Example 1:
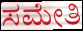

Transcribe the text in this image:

ಸಮೇತಿ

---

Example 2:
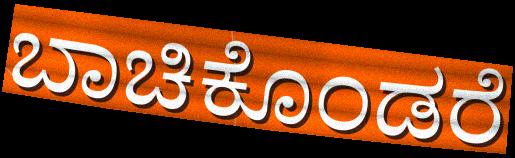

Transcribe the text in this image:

ಬಾಚಿಕೊಂಡರೆ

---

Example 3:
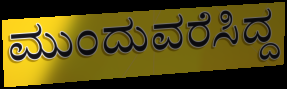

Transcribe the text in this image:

ಮುಂದುವರೆಸಿದ್ದ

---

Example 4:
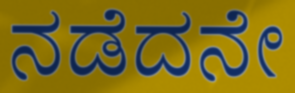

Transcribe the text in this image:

ನಡೆದನೇ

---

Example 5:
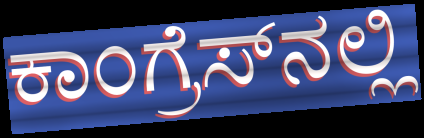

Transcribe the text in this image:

ಕಾಂಗ್ರೆಸ್‌ನಲ್ಲಿ